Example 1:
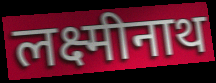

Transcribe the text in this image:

लक्ष्मीनाथ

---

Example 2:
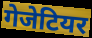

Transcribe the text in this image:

गेजेटियर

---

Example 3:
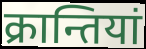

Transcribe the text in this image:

क्रान्तियां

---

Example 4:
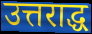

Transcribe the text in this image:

उत्तराद्ध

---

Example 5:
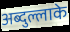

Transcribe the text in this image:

अब्दुल्लाके